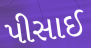
પીસાઈ